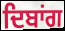
ਦਿਬਾਂਗ